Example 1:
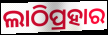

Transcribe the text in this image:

ଲାଠିପ୍ରହାର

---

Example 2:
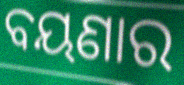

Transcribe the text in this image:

ବୟଣାର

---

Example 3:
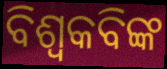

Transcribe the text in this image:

ବିଶ୍ୱକବିଙ୍କ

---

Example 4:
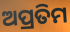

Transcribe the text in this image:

ଅପ୍ରତିମ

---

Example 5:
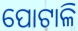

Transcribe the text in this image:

ପୋଟାଳି